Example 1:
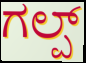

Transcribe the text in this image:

ಗಲ್ಪ್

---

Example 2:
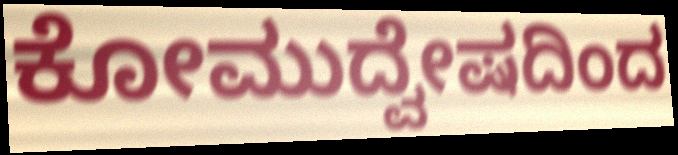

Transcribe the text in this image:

ಕೋಮುದ್ವೇಷದಿಂದ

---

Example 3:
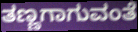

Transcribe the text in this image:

ತಣ್ಣಗಾಗುವಂತೆ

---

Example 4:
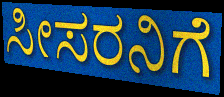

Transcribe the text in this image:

ಸೀಸರನಿಗೆ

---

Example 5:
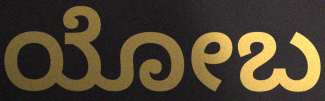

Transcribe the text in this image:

ಯೋಬ